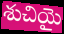
శుచియై